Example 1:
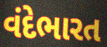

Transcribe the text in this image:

વંદેભારત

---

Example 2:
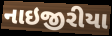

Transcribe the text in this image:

નાઇજીરીયા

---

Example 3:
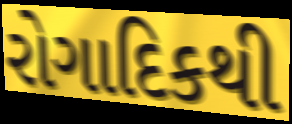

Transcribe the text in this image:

રોગાદિકથી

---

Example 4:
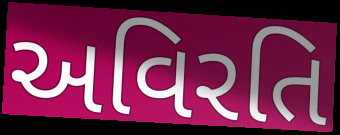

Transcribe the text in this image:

અવિરતિ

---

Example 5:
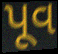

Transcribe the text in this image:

પૂવ